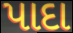
પાદા